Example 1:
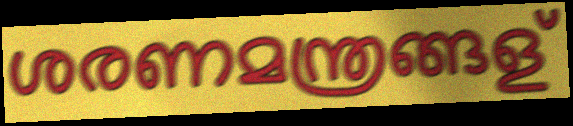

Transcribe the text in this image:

ശരണമന്ത്രങ്ങള്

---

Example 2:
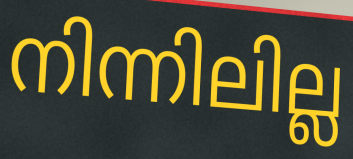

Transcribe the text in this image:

നിന്നിലില്ല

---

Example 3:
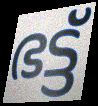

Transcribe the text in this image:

ഭട്ട്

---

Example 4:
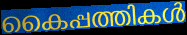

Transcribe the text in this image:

കൈപ്പത്തികൾ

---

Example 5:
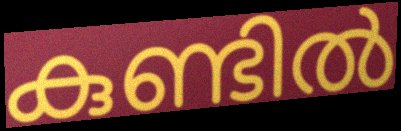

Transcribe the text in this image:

കുണ്ടിൽ